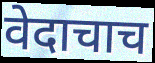
वेदाचाच